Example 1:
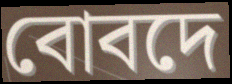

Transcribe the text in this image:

বোবদে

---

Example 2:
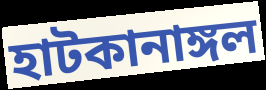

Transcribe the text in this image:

হাটকানাঙ্গল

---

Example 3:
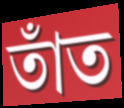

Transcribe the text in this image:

তাঁত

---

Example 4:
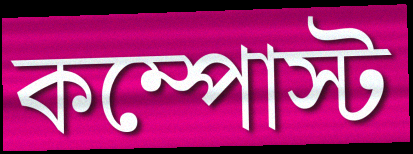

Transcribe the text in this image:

কম্পোস্ট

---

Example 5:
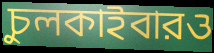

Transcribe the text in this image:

চুলকাইবারও